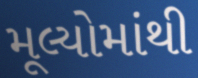
મૂલ્યોમાંથી